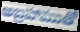
అబ్రహాముతో